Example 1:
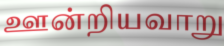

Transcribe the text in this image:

ஊன்றியவாறு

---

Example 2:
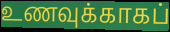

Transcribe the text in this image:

உணவுக்காகப்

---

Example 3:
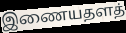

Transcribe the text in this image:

இணையதளத்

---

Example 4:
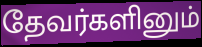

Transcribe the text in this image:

தேவர்களினும்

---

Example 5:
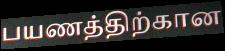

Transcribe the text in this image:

பயணத்திற்கான